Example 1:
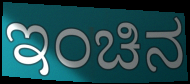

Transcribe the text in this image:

ಇಂಚಿನ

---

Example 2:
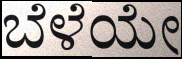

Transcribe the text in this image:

ಬೆಳೆಯೇ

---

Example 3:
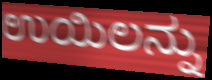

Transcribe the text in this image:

ಉಯಿಲನ್ನು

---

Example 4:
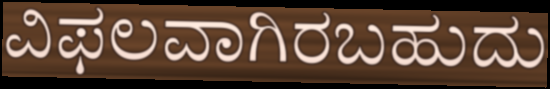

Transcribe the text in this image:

ವಿಫಲವಾಗಿರಬಹುದು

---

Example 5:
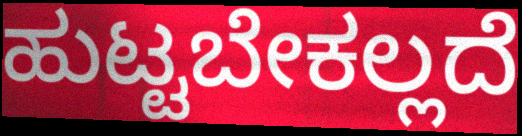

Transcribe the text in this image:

ಹುಟ್ಟಬೇಕಲ್ಲದೆ